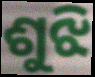
ଶୁଝି